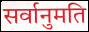
सर्वानुमति